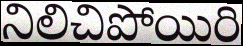
నిలిచిపోయిరి